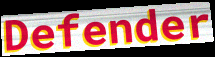
Defender